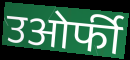
उओर्फी